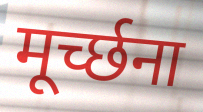
मूर्च्छना